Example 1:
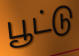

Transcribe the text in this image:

பூட்டு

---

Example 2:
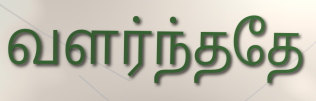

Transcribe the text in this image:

வளர்ந்ததே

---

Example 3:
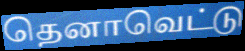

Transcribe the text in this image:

தெனாவெட்டு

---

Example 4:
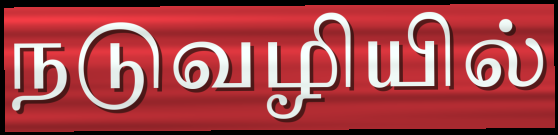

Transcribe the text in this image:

நடுவழியில்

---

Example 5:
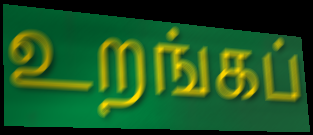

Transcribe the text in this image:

உறங்கப்